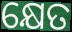
କ୍ଷେତ